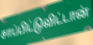
சாப்பிட்டுவிட்டான்